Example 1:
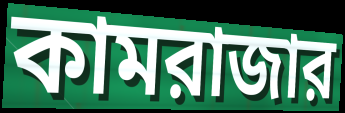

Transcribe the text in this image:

কামরাজার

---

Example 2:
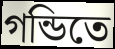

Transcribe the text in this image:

গন্ডিতে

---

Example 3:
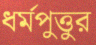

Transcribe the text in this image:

ধর্মপুত্তুর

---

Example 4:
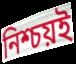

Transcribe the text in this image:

নিশ্চয়ই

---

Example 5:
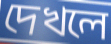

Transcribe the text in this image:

দেখলে